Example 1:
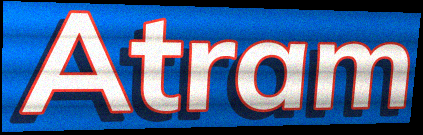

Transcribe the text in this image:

Atram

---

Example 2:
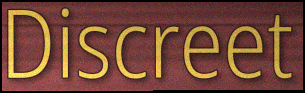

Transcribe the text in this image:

Discreet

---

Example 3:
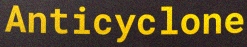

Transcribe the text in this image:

Anticyclone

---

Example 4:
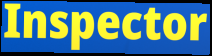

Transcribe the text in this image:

Inspector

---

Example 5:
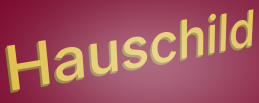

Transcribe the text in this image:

Hauschild